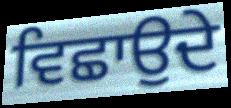
ਵਿਛਾਉਦੇ